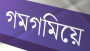
গমগমিয়ে